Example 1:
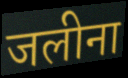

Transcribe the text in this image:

जलीना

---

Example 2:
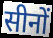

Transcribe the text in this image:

सीनों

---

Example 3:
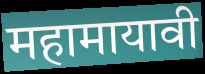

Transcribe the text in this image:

महामायावी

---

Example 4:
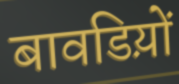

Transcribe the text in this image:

बावडिय़ों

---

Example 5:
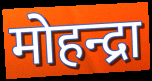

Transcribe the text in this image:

मोहन्द्रा